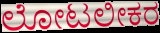
ಲೋಟಲೀಕರ